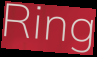
Ring